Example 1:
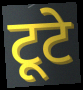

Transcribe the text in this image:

टूटे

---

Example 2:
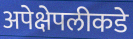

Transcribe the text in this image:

अपेक्षेपलीकडे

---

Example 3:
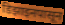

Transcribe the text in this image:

डिझाइनपासून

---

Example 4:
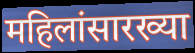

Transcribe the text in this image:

महिलांसारख्या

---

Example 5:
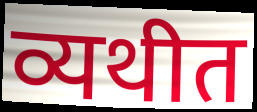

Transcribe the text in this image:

व्यथीत